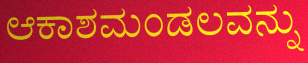
ಆಕಾಶಮಂಡಲವನ್ನು